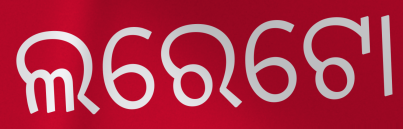
ଲରେଟୋ